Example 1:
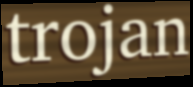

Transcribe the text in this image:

trojan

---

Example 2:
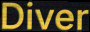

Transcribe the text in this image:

Diver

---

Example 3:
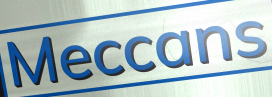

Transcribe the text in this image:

Meccans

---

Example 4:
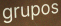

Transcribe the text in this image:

grupos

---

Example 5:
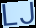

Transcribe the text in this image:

LJ